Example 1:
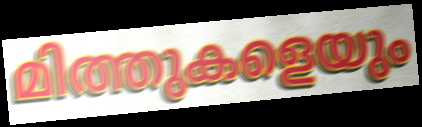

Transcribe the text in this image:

മിത്തുകളെയും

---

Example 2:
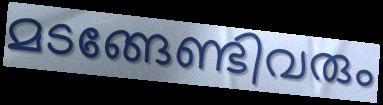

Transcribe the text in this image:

മടങ്ങേണ്ടിവരും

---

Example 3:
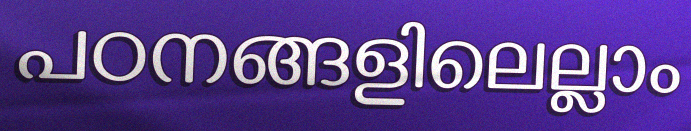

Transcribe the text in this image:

പഠനങ്ങളിലെല്ലാം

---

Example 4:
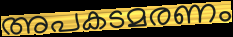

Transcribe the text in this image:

അപകടമരണം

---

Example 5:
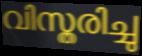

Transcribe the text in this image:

വിസ്തരിച്ചു